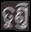
ତୁଣ୍ତି